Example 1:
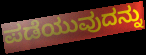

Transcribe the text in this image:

ಪಡೆಯುವುದನ್ನು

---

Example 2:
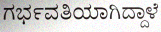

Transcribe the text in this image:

ಗರ್ಭವತಿಯಾಗಿದ್ದಾಳೆ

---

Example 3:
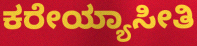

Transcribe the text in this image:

ಕರೇಯ್ಯಾಸೀತಿ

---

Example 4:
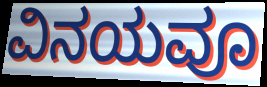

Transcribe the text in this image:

ವಿನಯವೂ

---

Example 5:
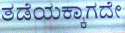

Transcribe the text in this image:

ತಡೆಯಕ್ಕಾಗದೇ